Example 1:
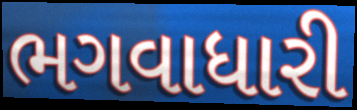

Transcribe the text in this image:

ભગવાધારી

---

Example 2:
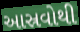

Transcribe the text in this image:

આસ્રવોથી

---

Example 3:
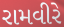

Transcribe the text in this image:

રામવીરે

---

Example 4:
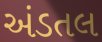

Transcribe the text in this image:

અંડતલ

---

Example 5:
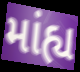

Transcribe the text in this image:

માંહ્ય